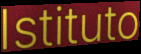
Istituto